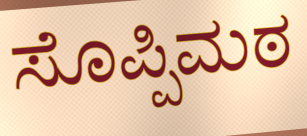
ಸೊಪ್ಪಿಮಠ